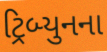
ટ્રિબ્યુનના